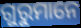
ଗୁରୁମାନେ